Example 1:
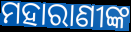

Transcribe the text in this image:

ମହାରାଣୀଙ୍କ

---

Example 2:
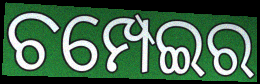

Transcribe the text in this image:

ଚମ୍ପେଇର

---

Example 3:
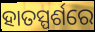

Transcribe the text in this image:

ହାତସ୍ପର୍ଶରେ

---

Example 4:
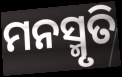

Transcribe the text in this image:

ମନସ୍ମୃତି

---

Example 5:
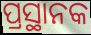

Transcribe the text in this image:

ପ୍ରସ୍ଥାନକ